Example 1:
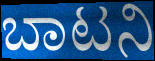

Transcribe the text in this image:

ಬಾಟನಿ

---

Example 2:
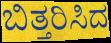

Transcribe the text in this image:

ಬಿತ್ತರಿಸಿದ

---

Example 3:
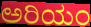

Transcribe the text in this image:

ಅರಿಯಂ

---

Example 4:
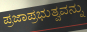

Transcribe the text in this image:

ಪ್ರಜಾಪ್ರಭುತ್ವವನ್ನು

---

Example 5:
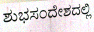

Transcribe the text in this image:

ಶುಭಸಂದೇಶದಲ್ಲಿ